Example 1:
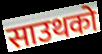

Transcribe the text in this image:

साउथको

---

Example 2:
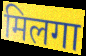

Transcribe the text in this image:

मिलगा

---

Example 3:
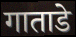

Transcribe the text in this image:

गाताडे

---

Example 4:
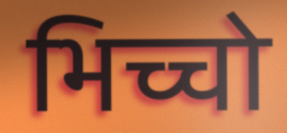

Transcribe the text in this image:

भिच्चो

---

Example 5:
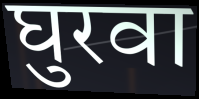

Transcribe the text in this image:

घुरवा